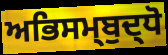
ਅਭਿਸਮ੍ਬੁਦ੍ਧੋ